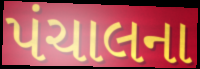
પંચાલના